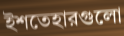
ইশতেহারগুলো